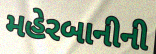
મહેરબાનીની